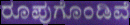
ರೂಪುಗೊಂಡಿವೆ